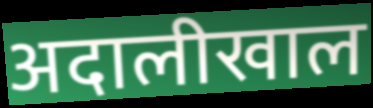
अदालीखाल